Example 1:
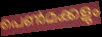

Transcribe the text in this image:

പെൺമക്കളും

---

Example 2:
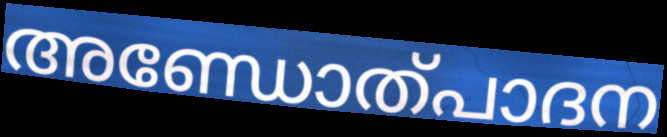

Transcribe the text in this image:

അണ്ഡോത്പാദന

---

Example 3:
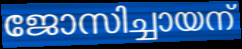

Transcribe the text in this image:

ജോസിച്ചായന്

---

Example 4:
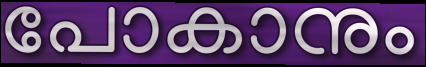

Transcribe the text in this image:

പോകാനും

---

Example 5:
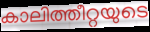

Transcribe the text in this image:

കാലിത്തീറ്റയുടെ